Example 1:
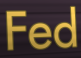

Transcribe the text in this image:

Fed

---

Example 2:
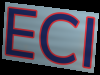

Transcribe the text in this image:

ECI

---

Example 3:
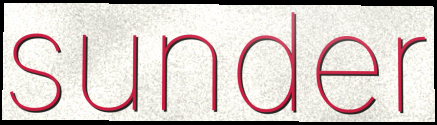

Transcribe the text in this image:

sunder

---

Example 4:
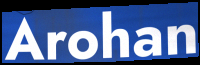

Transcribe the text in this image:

Arohan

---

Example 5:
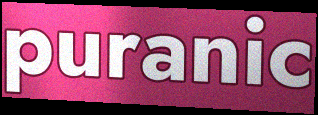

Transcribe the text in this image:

puranic